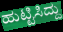
ಹುಟ್ಟಿಸಿದ್ದು